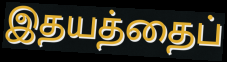
இதயத்தைப்